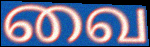
வை